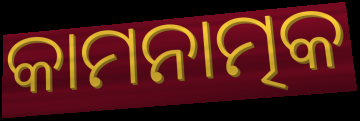
କାମନାତ୍ମକ